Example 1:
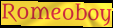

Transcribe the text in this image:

Romeoboy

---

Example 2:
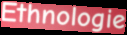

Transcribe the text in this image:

Ethnologie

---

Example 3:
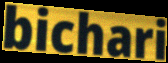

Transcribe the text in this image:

bichari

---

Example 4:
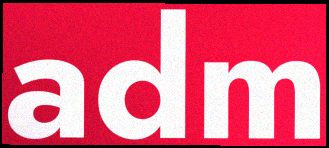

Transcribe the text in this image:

adm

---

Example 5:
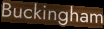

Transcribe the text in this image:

Buckingham